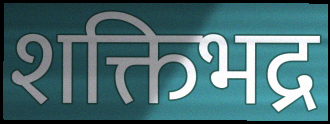
शक्तिभद्र